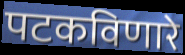
पटकविणारे